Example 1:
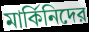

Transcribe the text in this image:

মার্কিনিদের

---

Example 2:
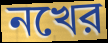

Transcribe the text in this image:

নখের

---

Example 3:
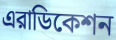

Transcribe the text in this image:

এরাডিকেশন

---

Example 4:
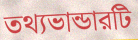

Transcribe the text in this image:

তথ্যভান্ডারটি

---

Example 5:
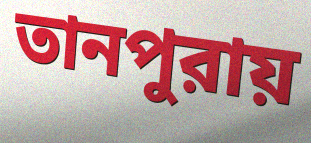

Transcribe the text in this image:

তানপুরায়